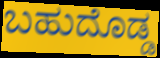
ಬಹುದೊಡ್ಡ